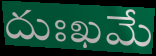
దుఃఖమే